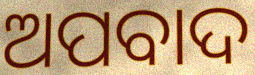
ଅପବାଦ